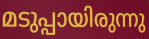
മടുപ്പായിരുന്നു